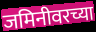
जमिनीवरच्या